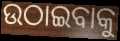
ଉଠାଇବାକୁ